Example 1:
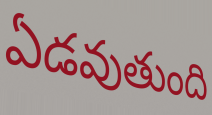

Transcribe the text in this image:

ఏడవుతుంది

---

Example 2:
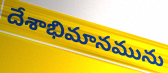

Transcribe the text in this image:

దేశాభిమానమును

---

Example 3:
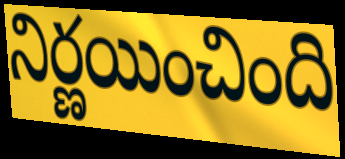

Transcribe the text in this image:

నిర్ణయించింది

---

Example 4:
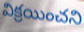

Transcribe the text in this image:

విక్రయించని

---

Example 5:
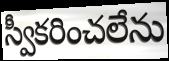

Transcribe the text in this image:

స్వీకరించలేను